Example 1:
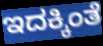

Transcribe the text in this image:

ಇದಕ್ಕಿಂತೆ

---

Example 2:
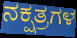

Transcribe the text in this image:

ನಕ್ಷತ್ರಗಳ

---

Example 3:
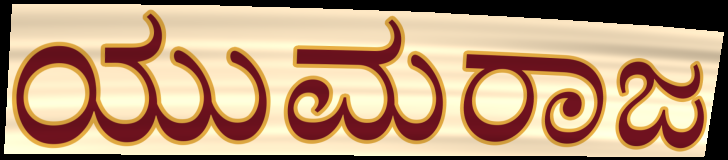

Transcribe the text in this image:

ಯುಮರಾಜ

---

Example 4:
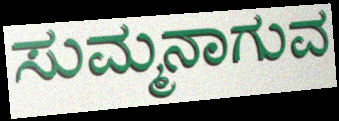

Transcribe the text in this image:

ಸುಮ್ಮನಾಗುವ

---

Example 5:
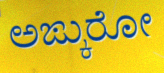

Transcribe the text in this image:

ಅಙ್ಕುರೋ